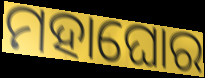
ମହାଘୋର